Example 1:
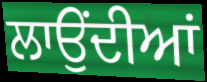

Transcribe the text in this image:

ਲਾਉੰਦੀਆਂ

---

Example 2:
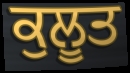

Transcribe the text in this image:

ਕੁਲੂਤ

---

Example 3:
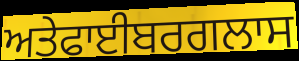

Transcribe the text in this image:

ਅਤੇਫਾਈਬਰਗਲਾਸ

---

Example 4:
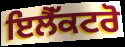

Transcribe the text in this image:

ਇਲੈੱਕਟਰੋ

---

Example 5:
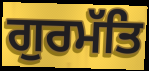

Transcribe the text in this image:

ਗੁਰਮੱਤਿ